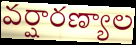
వర్షారణ్యాల